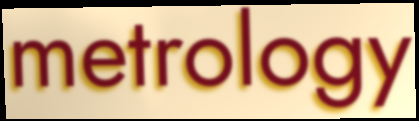
metrology